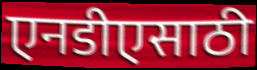
एनडीएसाठी